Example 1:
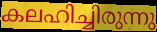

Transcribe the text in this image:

കലഹിച്ചിരുന്നു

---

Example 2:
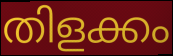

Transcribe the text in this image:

തിളക്കം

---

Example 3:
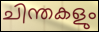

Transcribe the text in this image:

ചിന്തകളും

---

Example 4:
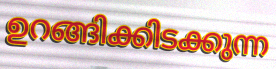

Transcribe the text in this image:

ഉറങ്ങിക്കിടക്കുന്ന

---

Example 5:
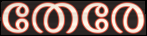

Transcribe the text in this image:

തേരേ